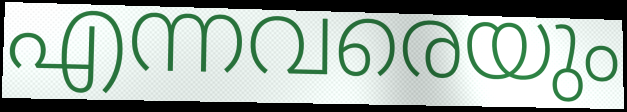
എന്നവരെയും